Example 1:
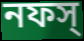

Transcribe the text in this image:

নফস্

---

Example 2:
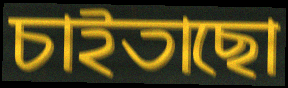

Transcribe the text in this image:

চাইতাছো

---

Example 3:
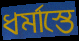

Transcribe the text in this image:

ধর্মাস্তে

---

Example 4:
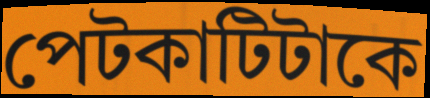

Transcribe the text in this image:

পেটকাটিটাকে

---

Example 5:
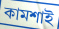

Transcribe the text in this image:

কামশাই